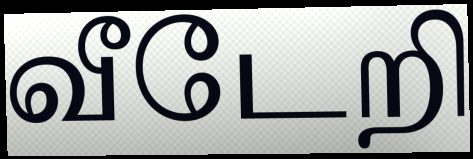
வீடேறி